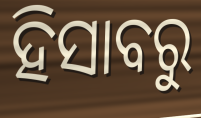
ହିସାବରୁ